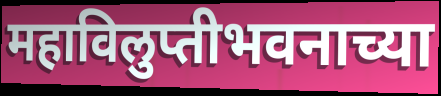
महाविलुप्तीभवनाच्या